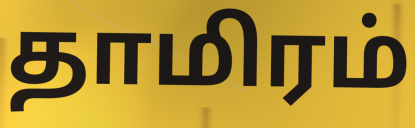
தாமிரம்